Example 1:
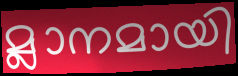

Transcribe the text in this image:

മ്ലാനമായി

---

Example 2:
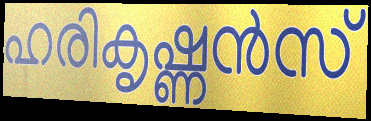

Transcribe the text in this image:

ഹരികൃഷ്ണൻസ്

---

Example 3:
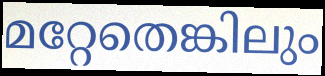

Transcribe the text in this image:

മറ്റേതെങ്കിലും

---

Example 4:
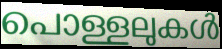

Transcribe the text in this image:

പൊള്ളലുകൾ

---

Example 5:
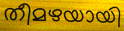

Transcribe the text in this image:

തീമഴയായി